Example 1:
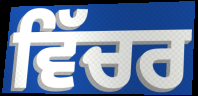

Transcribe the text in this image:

ਵਿੱਚਰ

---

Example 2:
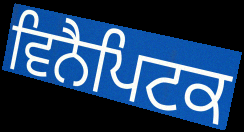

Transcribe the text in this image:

ਵਿਨੈਪਿਟਕ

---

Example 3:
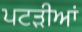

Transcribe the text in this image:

ਪਟਡ਼ੀਆਂ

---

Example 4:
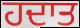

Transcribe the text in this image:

ਹਦਾਤ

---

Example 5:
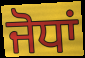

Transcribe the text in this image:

ਜੋਧਾਂ